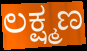
ಲಕ್ಷ್ಮಣ